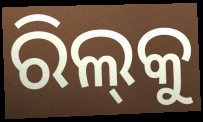
ରିଲ୍‌କୁ